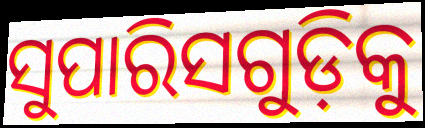
ସୁପାରିସଗୁଡ଼ିକୁ